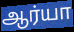
ஆர்யா